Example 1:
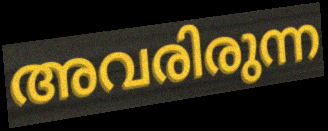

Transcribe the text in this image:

അവരിരുന്ന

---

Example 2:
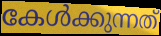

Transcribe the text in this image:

കേൾക്കുന്നത്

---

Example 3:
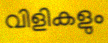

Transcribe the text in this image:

വിളികളും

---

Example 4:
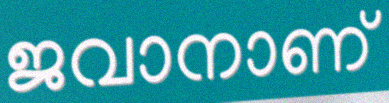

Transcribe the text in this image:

ജവാനാണ്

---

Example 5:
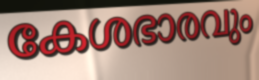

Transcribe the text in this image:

കേശഭാരവും